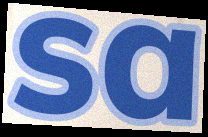
sa